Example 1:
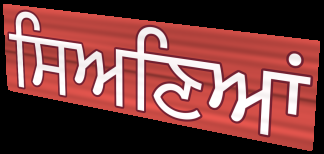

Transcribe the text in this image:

ਸਿਅਣਿਆਂ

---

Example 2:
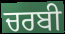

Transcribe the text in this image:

ਚਰਬੀ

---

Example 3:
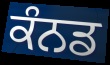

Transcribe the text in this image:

ਕੰਨਡ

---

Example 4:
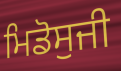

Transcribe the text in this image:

ਮਿਡੋਸੁਜੀ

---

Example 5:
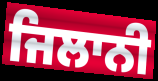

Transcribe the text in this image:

ਜਿਲਾਨੀ